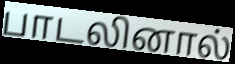
பாடலினால்